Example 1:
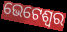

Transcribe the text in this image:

ଭେଟେଶ୍ୱର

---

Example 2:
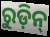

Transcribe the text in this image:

ରୁଡ଼ିନ୍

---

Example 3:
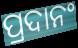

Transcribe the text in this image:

ପ୍ରଦାନଂ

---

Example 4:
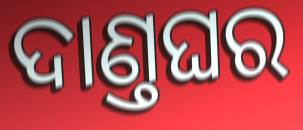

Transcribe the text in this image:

ଦାଣ୍ତଘର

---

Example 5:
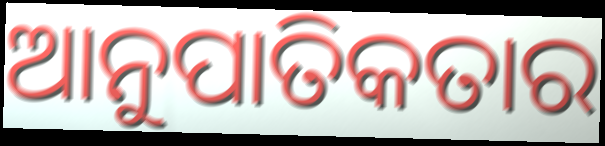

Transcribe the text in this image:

ଆନୁପାତିକତାର